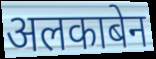
अलकाबेन